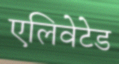
एलिवेटेड